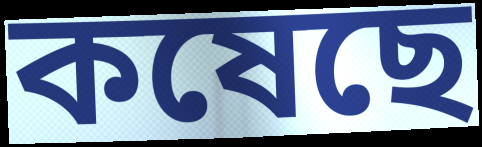
কষেছে